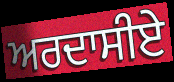
ਅਰਦਾਸੀਏ